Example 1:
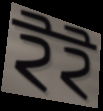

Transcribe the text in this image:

ইই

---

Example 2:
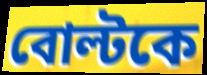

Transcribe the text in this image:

বোল্টকে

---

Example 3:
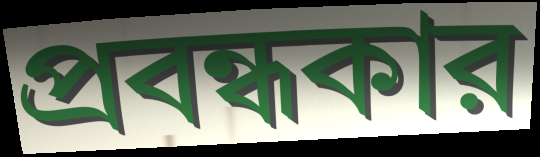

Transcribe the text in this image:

প্রবন্ধকার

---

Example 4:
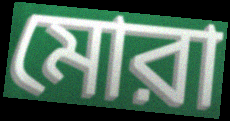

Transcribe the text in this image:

মোরা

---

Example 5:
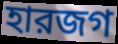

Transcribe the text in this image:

হারজগ